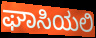
ಘಾಸಿಯಲಿ